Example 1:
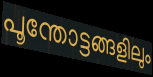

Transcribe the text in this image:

പൂന്തോട്ടങ്ങളിലും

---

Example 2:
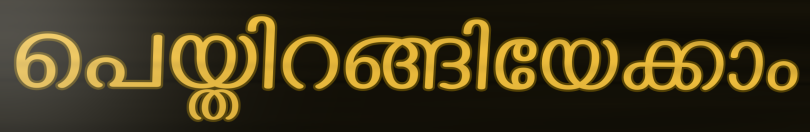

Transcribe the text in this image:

പെയ്തിറങ്ങിയേക്കാം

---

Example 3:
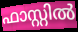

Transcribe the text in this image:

ഫാസ്റ്റിൽ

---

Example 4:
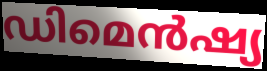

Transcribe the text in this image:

ഡിമെൻഷ്യ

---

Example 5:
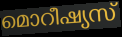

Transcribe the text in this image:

മൊറീഷ്യസ്